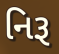
નિરૂ